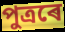
পুত্ৰৰে